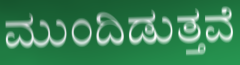
ಮುಂದಿಡುತ್ತವೆ